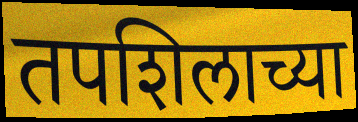
तपशिलाच्या